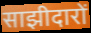
साझीदारों